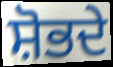
ਸ਼ੋਭਦੇ